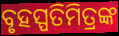
ବୃହସ୍ପତିମିତ୍ରଙ୍କ